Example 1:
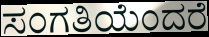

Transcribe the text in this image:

ಸಂಗತಿಯೆಂದರೆ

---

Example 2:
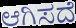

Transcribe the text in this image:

ಆಗಿಸದೆ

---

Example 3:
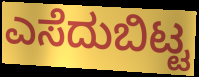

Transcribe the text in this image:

ಎಸೆದುಬಿಟ್ಟ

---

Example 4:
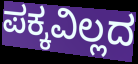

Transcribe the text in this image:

ಪಕ್ಕವಿಲ್ಲದ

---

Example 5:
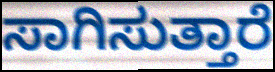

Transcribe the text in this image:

ಸಾಗಿಸುತ್ತಾರೆ